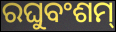
ରଘୁବଂଶମ୍